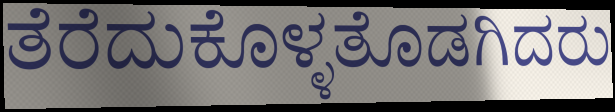
ತೆರೆದುಕೊಳ್ಳತೊಡಗಿದರು